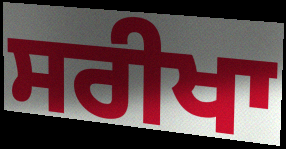
ਸਰੀਖਾ